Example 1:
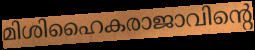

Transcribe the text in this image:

മിശിഹൈകരാജാവിന്റെ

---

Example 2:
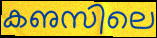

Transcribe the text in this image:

കഌസിലെ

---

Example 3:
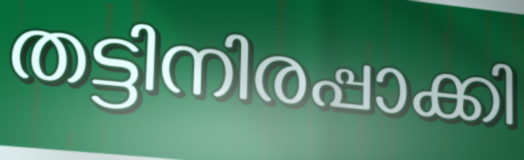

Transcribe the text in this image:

തട്ടിനിരപ്പാക്കി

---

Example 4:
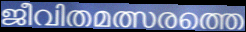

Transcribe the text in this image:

ജീവിതമത്സരത്തെ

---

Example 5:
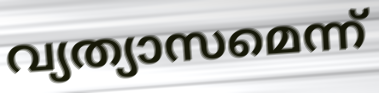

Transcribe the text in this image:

വ്യത്യാസമെന്ന്